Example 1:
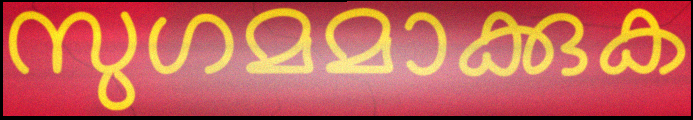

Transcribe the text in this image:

സുഗമമാക്കുക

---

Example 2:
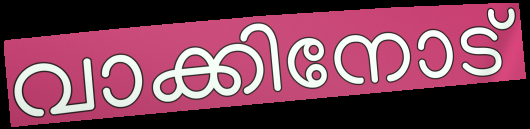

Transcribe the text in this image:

വാക്കിനോട്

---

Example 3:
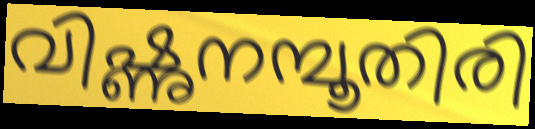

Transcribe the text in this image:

വിഷ്ണുനമ്പൂതിരി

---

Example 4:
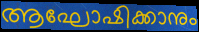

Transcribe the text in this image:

ആഘോഷിക്കാനും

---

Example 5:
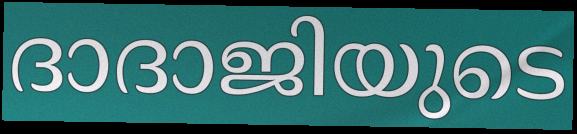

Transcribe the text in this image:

ദാദാജിയുടെ